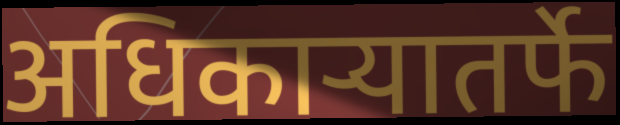
अधिकाऱ्यातर्फे